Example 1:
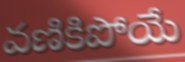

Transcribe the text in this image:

వణికిపోయే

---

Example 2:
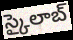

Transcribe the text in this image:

స్కైలాబ్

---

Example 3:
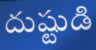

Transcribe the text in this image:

దుష్టుడి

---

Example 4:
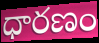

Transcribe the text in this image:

ధారణం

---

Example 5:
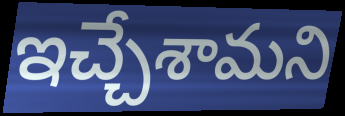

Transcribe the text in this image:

ఇచ్చేశామని